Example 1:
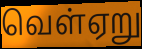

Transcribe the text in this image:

வெள்ஏறு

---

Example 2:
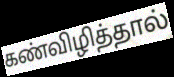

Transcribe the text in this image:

கண்விழித்தால்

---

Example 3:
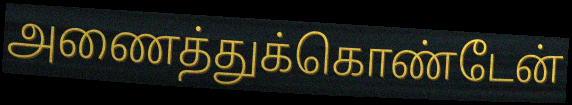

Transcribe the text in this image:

அணைத்துக்கொண்டேன்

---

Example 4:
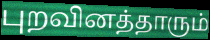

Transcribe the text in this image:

புறவினத்தாரும்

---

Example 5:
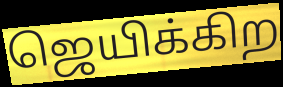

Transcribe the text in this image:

ஜெயிக்கிற